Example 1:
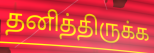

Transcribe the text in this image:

தனித்திருக்க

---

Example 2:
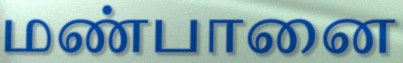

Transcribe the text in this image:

மண்பானை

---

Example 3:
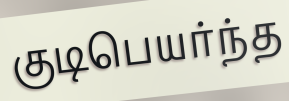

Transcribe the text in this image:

குடிபெயர்ந்த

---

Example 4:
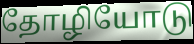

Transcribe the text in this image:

தோழியோடு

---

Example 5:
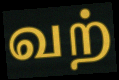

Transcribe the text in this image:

வற்